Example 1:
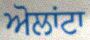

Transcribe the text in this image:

ਅੋਲਾਂਟਾ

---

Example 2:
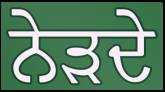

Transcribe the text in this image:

ਨੇੜਦੇ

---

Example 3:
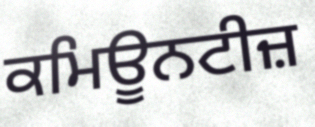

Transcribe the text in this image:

ਕਮਿਊਨਟੀਜ਼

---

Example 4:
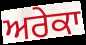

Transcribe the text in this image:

ਅਰੇਕਾ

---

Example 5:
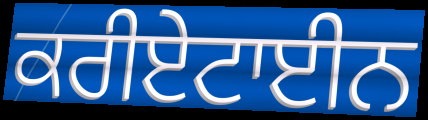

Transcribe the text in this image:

ਕਰੀਏਟਾਈਨ